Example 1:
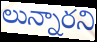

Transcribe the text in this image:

లున్నారని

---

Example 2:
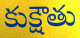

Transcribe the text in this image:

కుక్షౌతు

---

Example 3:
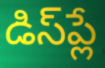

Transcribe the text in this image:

డిస్‌ప్లే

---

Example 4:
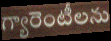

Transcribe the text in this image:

గ్యారెంటీలను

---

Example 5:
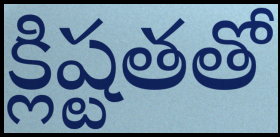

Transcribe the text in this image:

క్లిష్టతతో